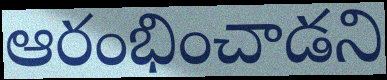
ఆరంభించాడని